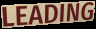
LEADING